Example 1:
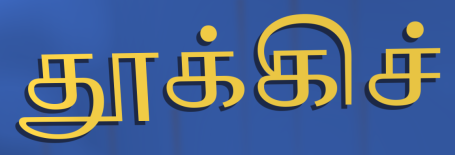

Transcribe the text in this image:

தூக்கிச்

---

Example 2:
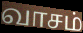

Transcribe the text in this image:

வாசம்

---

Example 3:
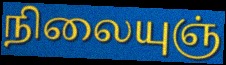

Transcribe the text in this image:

நிலையுஞ்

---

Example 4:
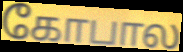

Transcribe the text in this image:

கோபால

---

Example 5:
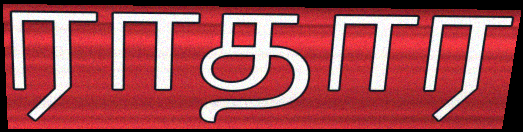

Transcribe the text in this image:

ராதார